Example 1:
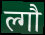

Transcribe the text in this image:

ल्गौ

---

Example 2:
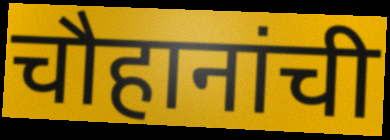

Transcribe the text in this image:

चौहानांची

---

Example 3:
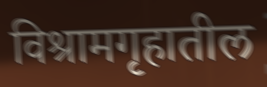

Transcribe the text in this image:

विश्रामगृहातील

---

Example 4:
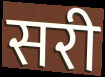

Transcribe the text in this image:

सरी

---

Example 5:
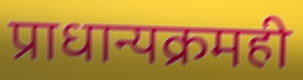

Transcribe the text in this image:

प्राधान्यक्रमही